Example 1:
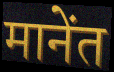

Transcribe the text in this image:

मानेंत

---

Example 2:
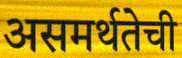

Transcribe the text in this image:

असमर्थतेची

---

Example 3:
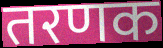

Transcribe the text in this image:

तरणक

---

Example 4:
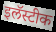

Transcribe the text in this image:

इलॅस्टीक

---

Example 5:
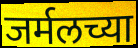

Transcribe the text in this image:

जर्मलच्या